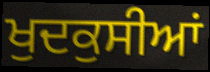
ਖੁਦਕੁਸੀਆਂ